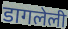
डागलेली